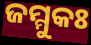
ଜମ୍ମୁକଃ